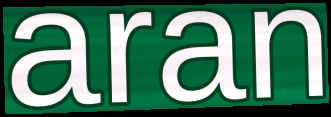
aran